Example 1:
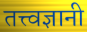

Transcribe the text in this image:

तत्त्वज्ञानी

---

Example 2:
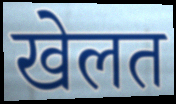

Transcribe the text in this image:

खेलत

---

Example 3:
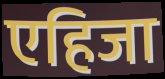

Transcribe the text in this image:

एहिजा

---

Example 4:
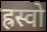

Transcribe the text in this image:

ह्रस्वो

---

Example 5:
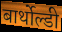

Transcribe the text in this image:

बार्थोल्डी